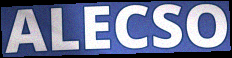
ALECSO